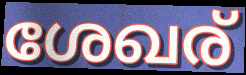
ശേഖര്